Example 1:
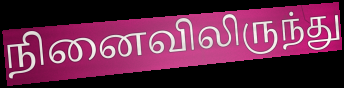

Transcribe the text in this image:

நினைவிலிருந்து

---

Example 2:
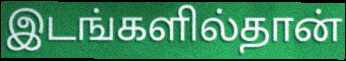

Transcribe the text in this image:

இடங்களில்தான்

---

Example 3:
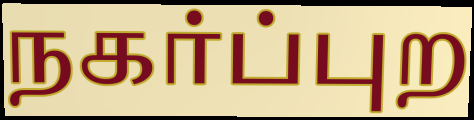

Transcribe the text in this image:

நகர்ப்புற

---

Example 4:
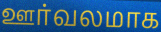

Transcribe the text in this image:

ஊர்வலமாக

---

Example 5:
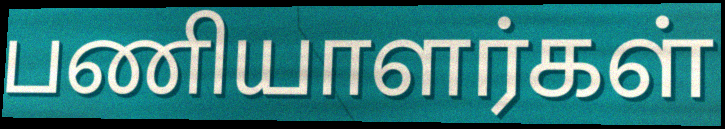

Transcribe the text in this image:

பணியாளர்கள்